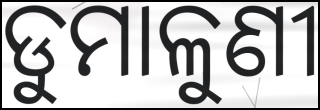
ଡୁମାଳୁଣୀ